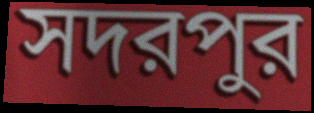
সদরপুর